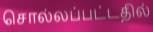
சொல்லப்பட்டதில்